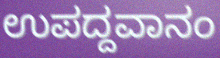
ಉಪದ್ದವಾನಂ